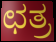
ಛತ್ರ